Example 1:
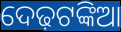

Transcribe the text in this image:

ଦେଢ଼ଟଙ୍କିଆ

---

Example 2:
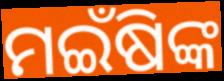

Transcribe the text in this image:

ମଇଁଷିଙ୍କ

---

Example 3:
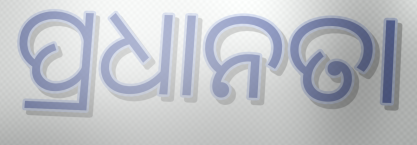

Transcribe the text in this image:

ପ୍ରଧାନତା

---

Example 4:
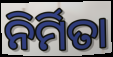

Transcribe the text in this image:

ନିର୍ମିତା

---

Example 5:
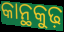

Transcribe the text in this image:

କାନ୍ଥକୁଢ଼